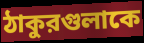
ঠাকুরগুলাকে